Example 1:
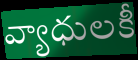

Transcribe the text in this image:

వ్యాధులకీ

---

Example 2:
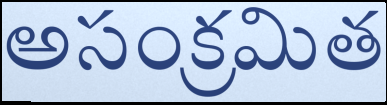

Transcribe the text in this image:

అసంక్రమిత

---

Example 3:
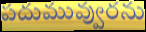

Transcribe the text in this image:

పదుమువ్వురను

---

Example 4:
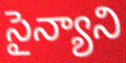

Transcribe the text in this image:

సైన్యాని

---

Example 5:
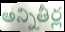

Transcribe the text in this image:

అన్నితీర్ల